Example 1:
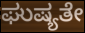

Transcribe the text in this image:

ಘುಷ್ಯತೇ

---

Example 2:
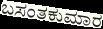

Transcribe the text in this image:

ಬಸಂತಕುಮಾರ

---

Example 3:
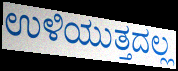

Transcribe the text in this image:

ಉಳಿಯುತ್ತದಲ್ಲ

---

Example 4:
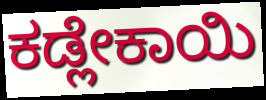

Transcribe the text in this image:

ಕಡ್ಲೇಕಾಯಿ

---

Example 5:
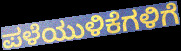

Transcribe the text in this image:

ಪಳೆಯುಳಿಕೆಗಳಿಗೆ